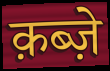
क़ब्ज़े